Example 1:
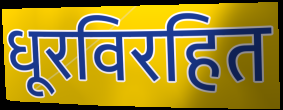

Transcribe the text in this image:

धूरविरहित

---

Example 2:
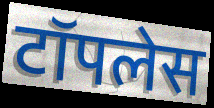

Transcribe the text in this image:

टॉपलेस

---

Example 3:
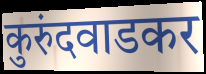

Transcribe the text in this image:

कुरुंदवाडकर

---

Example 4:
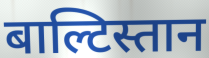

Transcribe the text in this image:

बाल्टिस्तान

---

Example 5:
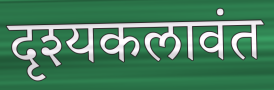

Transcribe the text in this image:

दृश्यकलावंत